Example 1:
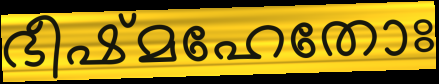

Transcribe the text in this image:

ഭീഷ്മഹേതോഃ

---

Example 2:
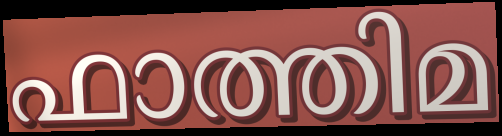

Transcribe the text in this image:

ഫാത്തിമ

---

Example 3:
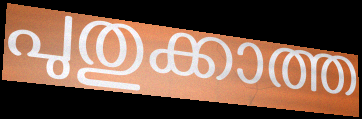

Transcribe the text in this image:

പുതുക്കാത്ത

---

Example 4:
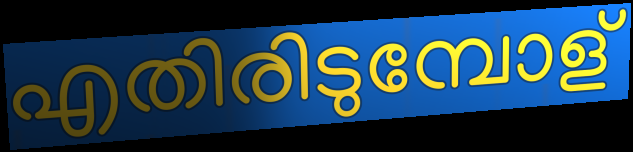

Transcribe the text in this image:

എതിരിടുമ്പോള്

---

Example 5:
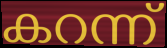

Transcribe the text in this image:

കറന്ന്